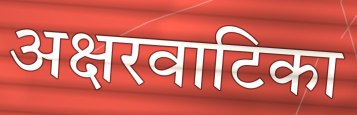
अक्षरवाटिका